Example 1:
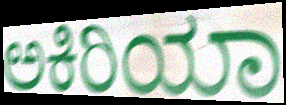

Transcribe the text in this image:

ಅಕಿರಿಯಾ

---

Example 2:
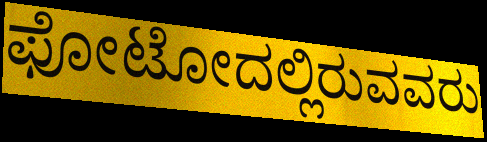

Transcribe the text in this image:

ಫೋಟೋದಲ್ಲಿರುವವರು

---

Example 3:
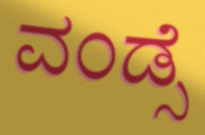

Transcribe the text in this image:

ವಂಡ್ಸೆ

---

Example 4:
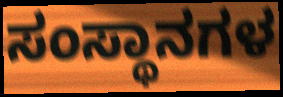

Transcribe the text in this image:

ಸಂಸ್ಥಾನಗಳ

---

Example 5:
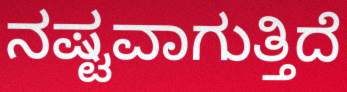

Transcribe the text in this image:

ನಷ್ಟವಾಗುತ್ತಿದೆ